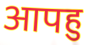
आपहु